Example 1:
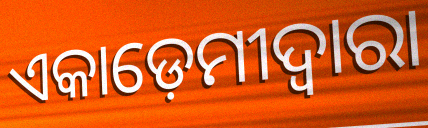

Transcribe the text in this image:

ଏକାଡ଼େମୀଦ୍ୱାରା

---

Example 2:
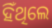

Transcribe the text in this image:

ହିଁଥିଲେ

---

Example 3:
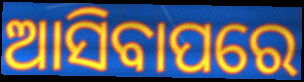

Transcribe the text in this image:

ଆସିବାପରେ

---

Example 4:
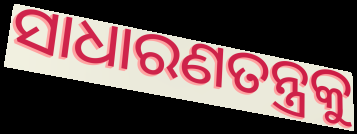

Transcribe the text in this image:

ସାଧାରଣତନ୍ତ୍ରକୁ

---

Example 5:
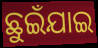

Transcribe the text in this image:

ଛୁଇଁଯାଇ